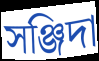
সঞ্জিদা